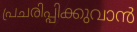
പ്രചരിപ്പിക്കുവാൻ